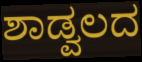
ಶಾಡ್ವಲದ